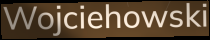
Wojciehowski